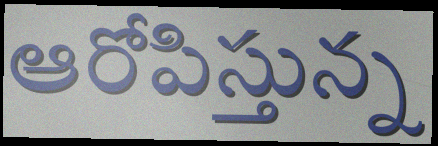
ఆరోపిస్తున్న